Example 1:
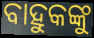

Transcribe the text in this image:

ବାହୁକଙ୍କୁ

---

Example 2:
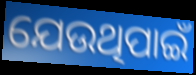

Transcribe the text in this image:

ଯେଉଥିପାଇଁ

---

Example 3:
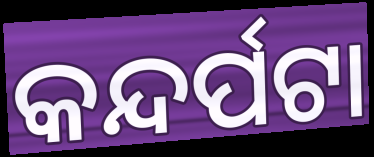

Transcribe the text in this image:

କନ୍ଦର୍ପଟା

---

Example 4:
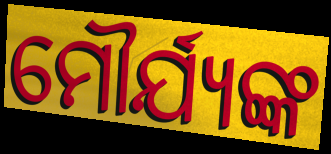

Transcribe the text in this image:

ମୌର୍ଯ୍ୟଙ୍କ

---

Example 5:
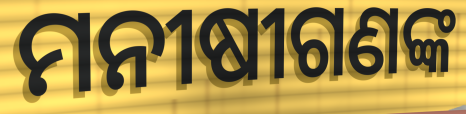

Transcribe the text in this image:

ମନୀଷୀଗଣଙ୍କ